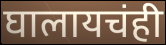
घालायचंही